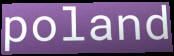
poland